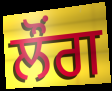
ਲੌਂਗ